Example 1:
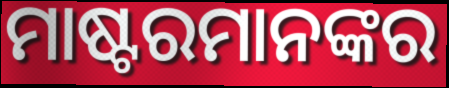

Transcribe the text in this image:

ମାଷ୍ଟରମାନଙ୍କର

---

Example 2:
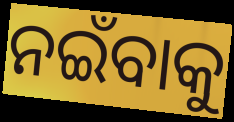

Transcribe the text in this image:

ନଇଁବାକୁ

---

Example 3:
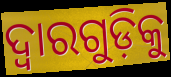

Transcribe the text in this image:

ଦ୍ୱାରଗୁଡ଼ିକୁ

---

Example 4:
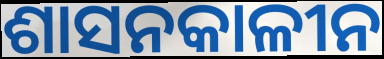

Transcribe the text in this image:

ଶାସନକାଳୀନ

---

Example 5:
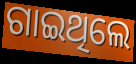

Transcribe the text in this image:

ଗାଇଥିଲେ